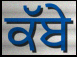
ਕੱਬੇ